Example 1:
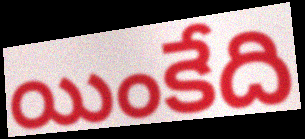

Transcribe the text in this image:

యింకేది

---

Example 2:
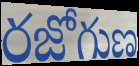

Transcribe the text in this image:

రజోగుణ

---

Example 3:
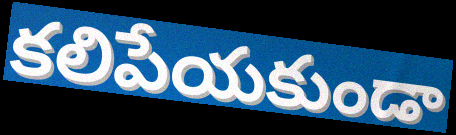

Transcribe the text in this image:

కలిపేయకుండా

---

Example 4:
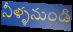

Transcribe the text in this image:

నీళ్ళనుండి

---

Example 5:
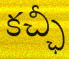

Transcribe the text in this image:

కచ్ఛీ